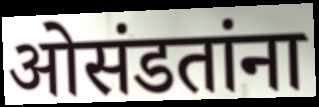
ओसंडतांना